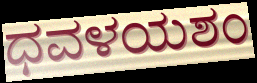
ಧವಳಯಶಂ